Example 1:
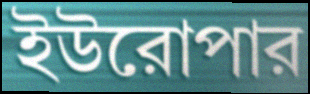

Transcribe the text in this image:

ইউরোপার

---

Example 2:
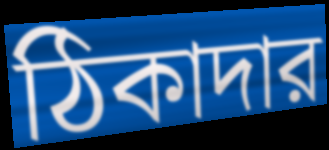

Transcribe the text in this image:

ঠিকাদার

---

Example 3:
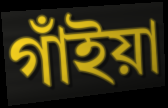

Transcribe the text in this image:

গাঁইয়া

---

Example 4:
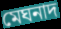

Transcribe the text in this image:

মেঘনাদ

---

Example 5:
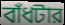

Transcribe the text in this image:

বাঁধটার